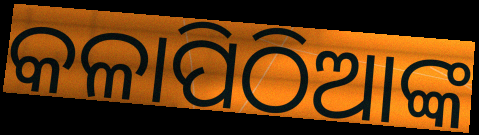
କଳାପିଠିଆଙ୍କ